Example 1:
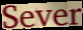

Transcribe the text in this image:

Sever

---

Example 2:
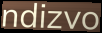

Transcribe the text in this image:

ndizvo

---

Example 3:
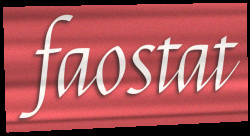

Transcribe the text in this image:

faostat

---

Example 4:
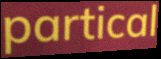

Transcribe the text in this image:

partical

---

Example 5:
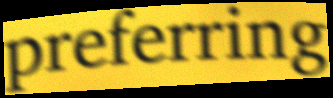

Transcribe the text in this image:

preferring